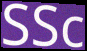
SSc